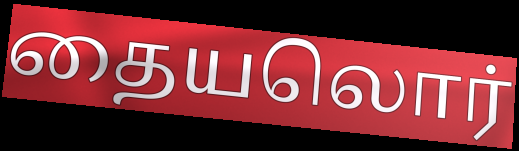
தையலொர்